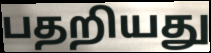
பதறியது